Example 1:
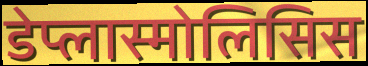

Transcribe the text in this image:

डेप्लास्मोलिसिस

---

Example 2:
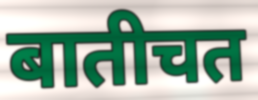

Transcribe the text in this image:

बातीचत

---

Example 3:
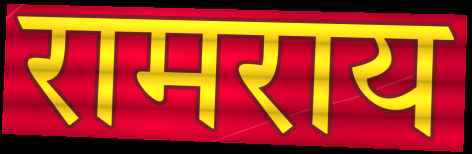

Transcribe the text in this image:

रामराय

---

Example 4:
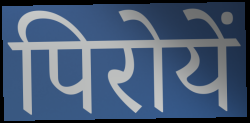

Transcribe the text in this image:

पिरोयें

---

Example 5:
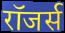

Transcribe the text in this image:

रॉजर्स